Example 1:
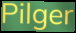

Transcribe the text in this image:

Pilger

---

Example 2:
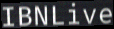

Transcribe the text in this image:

IBNLive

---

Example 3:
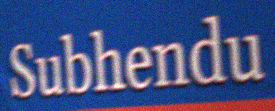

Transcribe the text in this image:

Subhendu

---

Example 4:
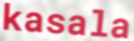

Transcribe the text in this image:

kasala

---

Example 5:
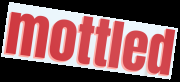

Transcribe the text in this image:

mottled